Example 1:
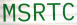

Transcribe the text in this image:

MSRTC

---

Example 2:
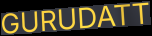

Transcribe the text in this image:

GURUDATT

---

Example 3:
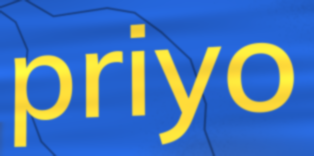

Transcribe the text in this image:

priyo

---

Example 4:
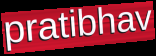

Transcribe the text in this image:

pratibhav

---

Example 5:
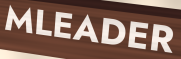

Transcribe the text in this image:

MLEADER